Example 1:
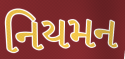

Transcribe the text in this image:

નિયમન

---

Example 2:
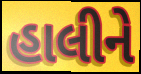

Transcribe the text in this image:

હાલીને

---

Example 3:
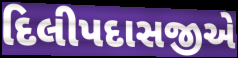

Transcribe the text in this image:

દિલીપદાસજીએ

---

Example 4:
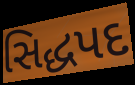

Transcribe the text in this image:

સિદ્ધપદ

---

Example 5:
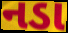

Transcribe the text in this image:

નડા